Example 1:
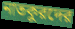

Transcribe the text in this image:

নাতকুরদের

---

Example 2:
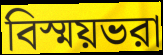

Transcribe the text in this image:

বিস্ময়ভরা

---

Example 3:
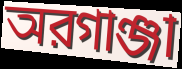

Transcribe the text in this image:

অরগাঞ্জা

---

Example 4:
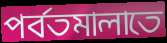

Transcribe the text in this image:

পর্বতমালাতে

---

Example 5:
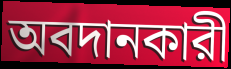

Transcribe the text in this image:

অবদানকারী